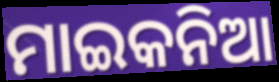
ମାଇକନିଆ